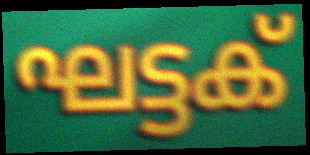
ഘട്ടക്